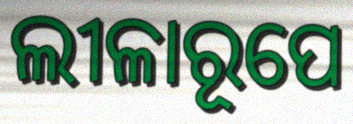
ଲୀଳାରୂପେ